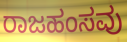
ರಾಜಹಂಸವು